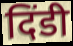
दिंडी